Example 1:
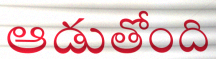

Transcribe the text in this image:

ఆడుతోంది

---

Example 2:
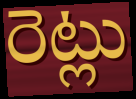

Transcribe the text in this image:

రెట్లు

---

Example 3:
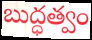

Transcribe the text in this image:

బుద్ధత్వం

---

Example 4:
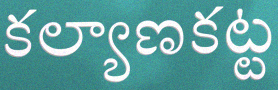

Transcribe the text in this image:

కల్యాణకట్ట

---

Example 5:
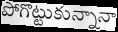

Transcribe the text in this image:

పోగొట్టుకున్నానా